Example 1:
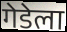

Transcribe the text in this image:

गेडेला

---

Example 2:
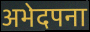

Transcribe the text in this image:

अभेदपना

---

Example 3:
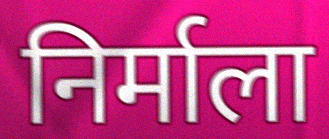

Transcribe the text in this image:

निर्माला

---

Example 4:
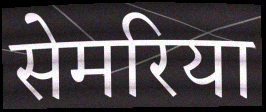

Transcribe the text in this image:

सेमरिया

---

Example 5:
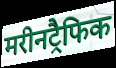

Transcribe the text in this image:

मरीनट्रैफिक